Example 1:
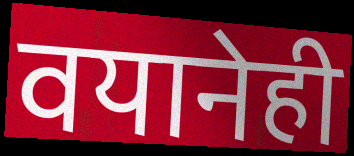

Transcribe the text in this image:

वयानेही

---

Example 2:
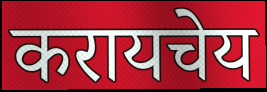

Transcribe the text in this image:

करायचेय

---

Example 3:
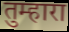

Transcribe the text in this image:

तुम्हारा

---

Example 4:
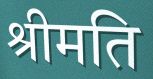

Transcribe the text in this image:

श्रीमति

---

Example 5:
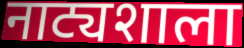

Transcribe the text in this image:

नाट्यशाला